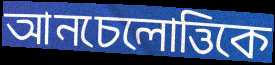
আনচেলোত্তিকে